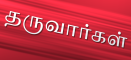
தருவார்கள்